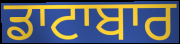
ਡਾਟਾਬਾਰ